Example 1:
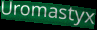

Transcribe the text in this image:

Uromastyx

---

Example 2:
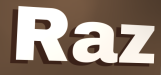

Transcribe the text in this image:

Raz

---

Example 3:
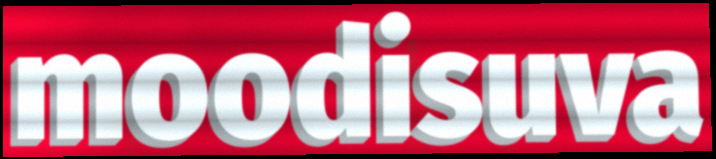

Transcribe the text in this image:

moodisuva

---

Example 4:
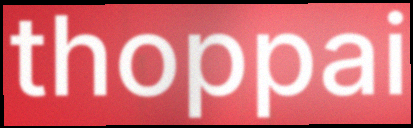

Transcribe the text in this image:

thoppai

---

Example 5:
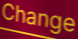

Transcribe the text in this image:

Change